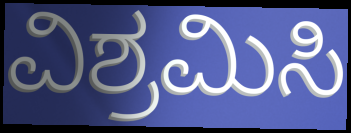
ವಿಶ್ರಮಿಸಿ